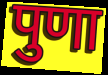
पुणा